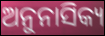
ଅନୁନାସିକ୍ୟ